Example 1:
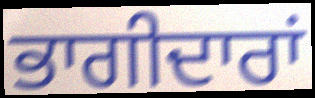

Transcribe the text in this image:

ਭਾਗੀਦਾਰਾਂ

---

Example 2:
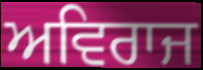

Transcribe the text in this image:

ਅਵਿਰਾਜ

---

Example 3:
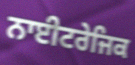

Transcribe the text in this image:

ਨਾਈਟਰੇਜਿਕ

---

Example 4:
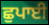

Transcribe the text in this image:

ਛੁਪਾਈ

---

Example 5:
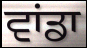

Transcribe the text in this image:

ਵਾਂਡਾ